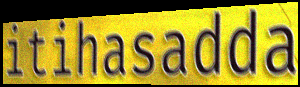
itihasadda